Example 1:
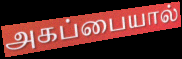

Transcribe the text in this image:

அகப்பையால்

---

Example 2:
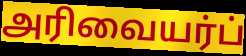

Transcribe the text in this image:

அரிவையர்ப்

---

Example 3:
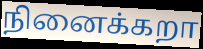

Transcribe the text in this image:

நினைக்கறா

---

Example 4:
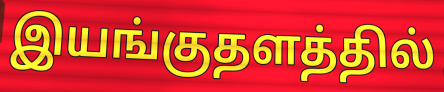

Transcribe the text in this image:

இயங்குதளத்தில்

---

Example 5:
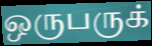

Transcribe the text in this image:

ஒருபருக்